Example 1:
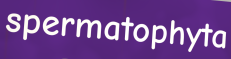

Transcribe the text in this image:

spermatophyta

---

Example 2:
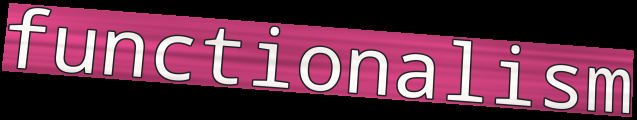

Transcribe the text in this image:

functionalism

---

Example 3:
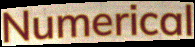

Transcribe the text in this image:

Numerical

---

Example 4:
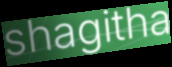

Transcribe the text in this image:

shagitha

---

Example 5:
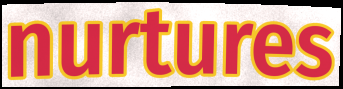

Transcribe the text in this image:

nurtures